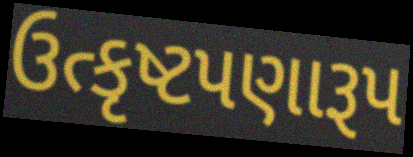
ઉત્કૃષ્ટપણારૂપ